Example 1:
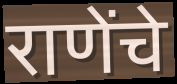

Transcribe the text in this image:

राणेंचे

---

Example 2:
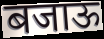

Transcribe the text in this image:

बजाऊ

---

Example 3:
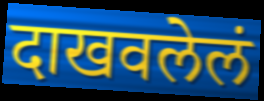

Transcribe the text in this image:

दाखवलेलं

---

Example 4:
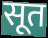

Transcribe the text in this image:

सूत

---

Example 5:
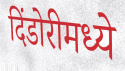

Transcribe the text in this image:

दिंडोरीमध्ये